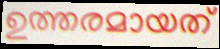
ഉത്തരമായത്